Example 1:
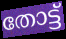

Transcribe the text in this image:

തോട്ട്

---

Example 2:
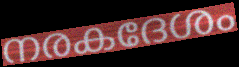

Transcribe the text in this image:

നരകദേശം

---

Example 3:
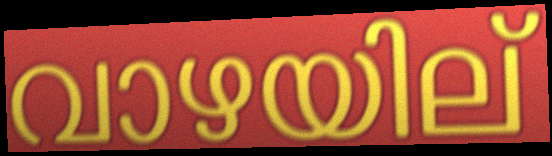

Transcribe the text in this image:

വാഴയില്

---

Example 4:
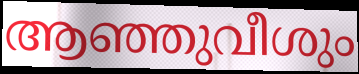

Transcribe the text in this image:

ആഞ്ഞുവീശും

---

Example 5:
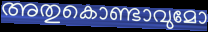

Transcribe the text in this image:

അതുകൊണ്ടാവുമോ